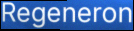
Regeneron